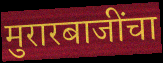
मुरारबाजींचा